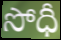
సోధీ